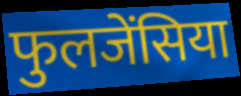
फुलजेंसिया